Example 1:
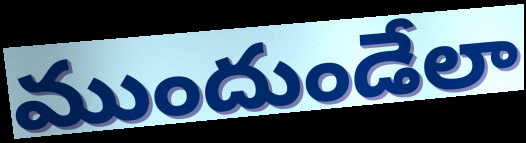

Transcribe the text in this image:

ముందుండేలా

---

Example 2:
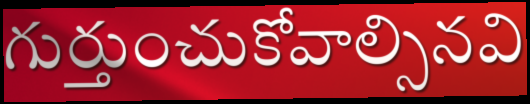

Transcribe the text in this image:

గుర్తుంచుకోవాల్సినవి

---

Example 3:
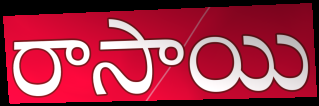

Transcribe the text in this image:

రాసాయి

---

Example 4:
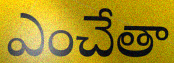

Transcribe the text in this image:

ఎంచేతా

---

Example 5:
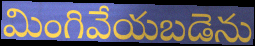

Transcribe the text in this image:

మింగివేయబడెను